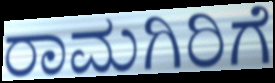
ರಾಮಗಿರಿಗೆ